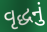
વૃદ્ધનું